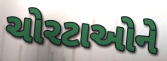
ચોરટાઓને